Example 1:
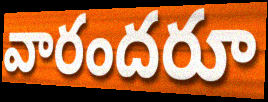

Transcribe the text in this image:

వారందరూ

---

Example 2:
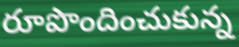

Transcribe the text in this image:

రూపొందించుకున్న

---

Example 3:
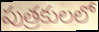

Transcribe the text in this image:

పుత్రకులలో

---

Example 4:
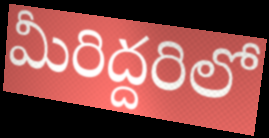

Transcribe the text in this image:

మీరిద్దరిలో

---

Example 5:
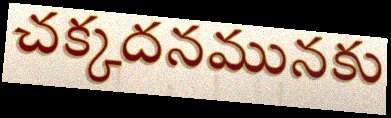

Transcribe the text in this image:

చక్కదనమునకు